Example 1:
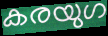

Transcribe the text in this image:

കരയുഗ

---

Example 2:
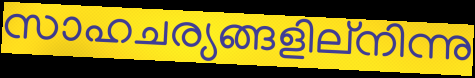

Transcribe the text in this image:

സാഹചര്യങ്ങളില്നിന്നു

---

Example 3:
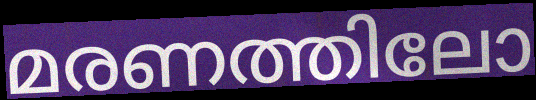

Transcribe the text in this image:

മരണത്തിലോ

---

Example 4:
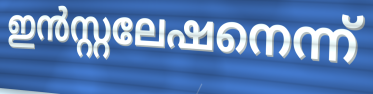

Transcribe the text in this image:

ഇൻസ്റ്റലേഷനെന്ന്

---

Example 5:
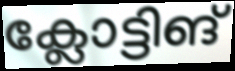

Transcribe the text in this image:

ക്ലോട്ടിങ്